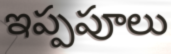
ఇప్పపూలు